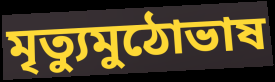
মৃত্যুমুঠোভাষ